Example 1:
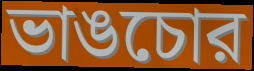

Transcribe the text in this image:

ভাঙচোর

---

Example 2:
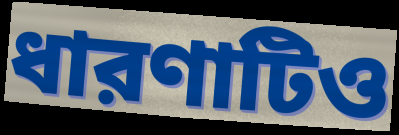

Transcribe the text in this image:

ধারণাটিও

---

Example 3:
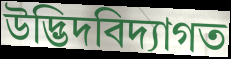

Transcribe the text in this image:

উদ্ভিদবিদ্যাগত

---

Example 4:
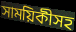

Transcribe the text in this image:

সাময়িকীসহ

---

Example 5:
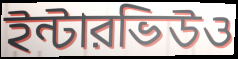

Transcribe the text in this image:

ইন্টারভিউও